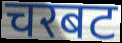
चरबट